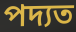
পদ্যত